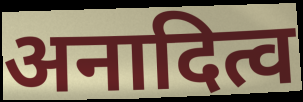
अनादित्व